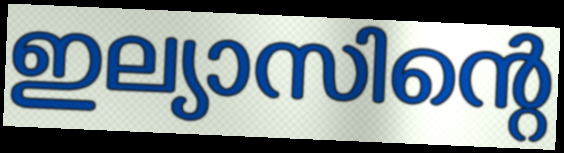
ഇല്യാസിന്റെ